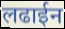
लढाईन